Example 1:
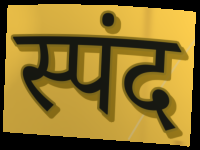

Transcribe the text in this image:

स्पंद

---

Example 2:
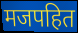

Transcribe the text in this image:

मजपहित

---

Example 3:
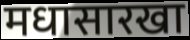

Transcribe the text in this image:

मधासारखा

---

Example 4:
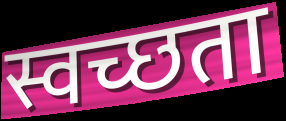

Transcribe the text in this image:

स्वच्छता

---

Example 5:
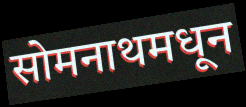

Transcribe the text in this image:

सोमनाथमधून